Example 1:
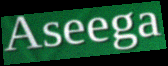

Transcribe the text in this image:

Aseega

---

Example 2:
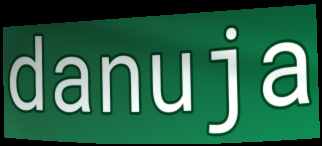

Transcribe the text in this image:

danuja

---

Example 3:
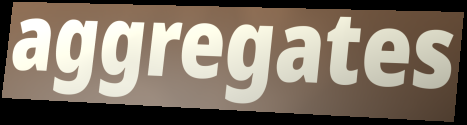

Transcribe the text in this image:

aggregates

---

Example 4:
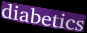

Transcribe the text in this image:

diabetics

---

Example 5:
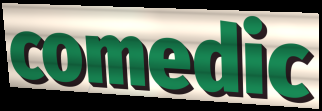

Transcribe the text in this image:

comedic